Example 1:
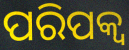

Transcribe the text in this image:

ପରିପକ୍ଵ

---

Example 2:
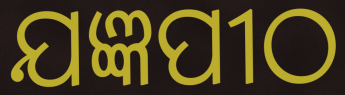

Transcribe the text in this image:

ଯଜ୍ଞପୀଠ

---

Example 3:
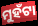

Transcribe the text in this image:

ମୁହଁଟା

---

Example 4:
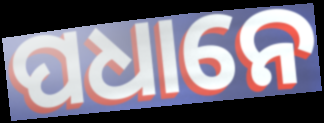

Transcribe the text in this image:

ପଧାନେ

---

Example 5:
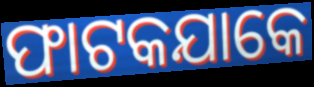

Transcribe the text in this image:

ଫାଟକଯାକେ